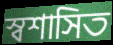
স্বশাসিত